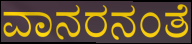
ವಾನರನಂತೆ